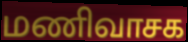
மணிவாசக